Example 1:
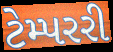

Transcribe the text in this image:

ટેમ્પરરી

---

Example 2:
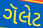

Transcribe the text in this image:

ગૅલેટ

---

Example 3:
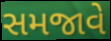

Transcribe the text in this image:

સમજાવે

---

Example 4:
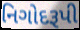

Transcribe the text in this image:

નિગોદરૂપી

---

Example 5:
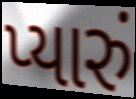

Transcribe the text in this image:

પ્યારું